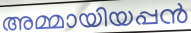
അമ്മായിയപ്പൻ